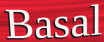
Basal